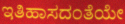
ಇತಿಹಾಸದಂತೆಯೇ